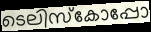
ടെലിസ്കോപ്പോ